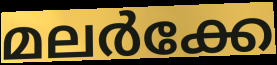
മലർക്കേ